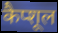
कैप्शूल